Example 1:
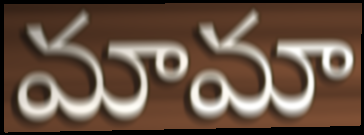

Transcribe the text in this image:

మామా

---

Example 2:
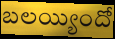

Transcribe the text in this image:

బలయ్యిందో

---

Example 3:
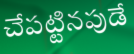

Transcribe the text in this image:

చేపట్టినపుడే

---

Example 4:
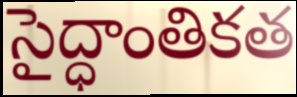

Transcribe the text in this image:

సైద్ధాంతికత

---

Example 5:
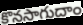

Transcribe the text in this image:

కొనసాగుదాం